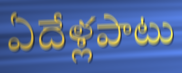
ఏదేళ్లపాటు